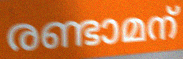
രണ്ടാമന്